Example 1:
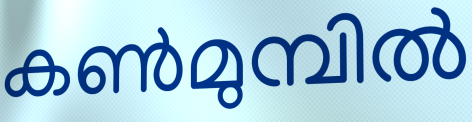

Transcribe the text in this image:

കൺമുമ്പിൽ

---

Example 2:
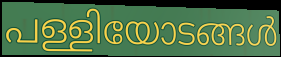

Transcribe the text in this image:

പള്ളിയോടങ്ങൾ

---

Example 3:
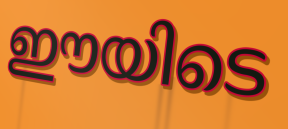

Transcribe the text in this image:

ഈയിടെ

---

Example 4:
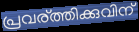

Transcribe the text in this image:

പ്രവര്ത്തിക്കുവിന്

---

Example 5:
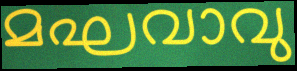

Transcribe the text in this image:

മഘവാവു